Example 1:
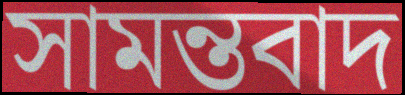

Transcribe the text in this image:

সামন্তবাদ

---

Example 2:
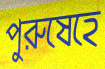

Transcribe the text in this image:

পুৰুষেহে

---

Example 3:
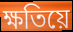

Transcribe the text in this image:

ক্ষতিয়ে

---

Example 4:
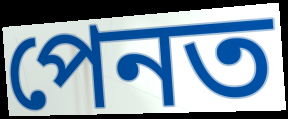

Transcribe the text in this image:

পেনত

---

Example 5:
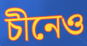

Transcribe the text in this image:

চীনেও